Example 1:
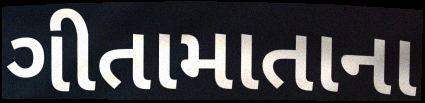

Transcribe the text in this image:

ગીતામાતાના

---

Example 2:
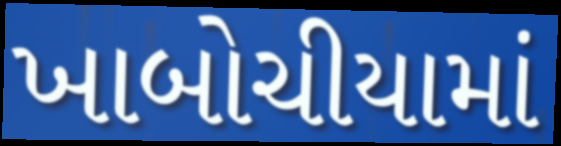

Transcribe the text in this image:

ખાબોચીયામાં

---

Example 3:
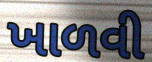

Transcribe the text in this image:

ખાળવી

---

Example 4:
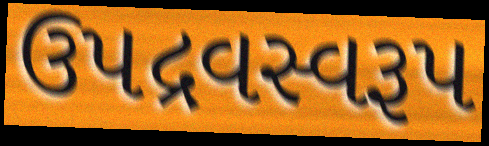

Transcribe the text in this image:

ઉપદ્રવસ્વરૂપ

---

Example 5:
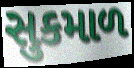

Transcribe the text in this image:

સુકમાળ